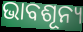
ଭାବଶୂନ୍ୟ